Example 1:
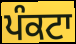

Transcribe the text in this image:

ਪੰਕਟਾ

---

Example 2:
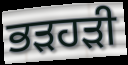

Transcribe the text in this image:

ਭੜਹੜੀ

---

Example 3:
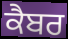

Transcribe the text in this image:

ਕੈਬਰ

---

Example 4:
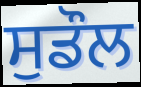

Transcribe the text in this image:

ਸੁਡੌਲ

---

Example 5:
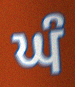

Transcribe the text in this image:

ਘੰ